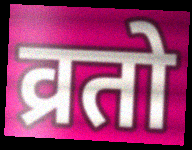
व्रतो